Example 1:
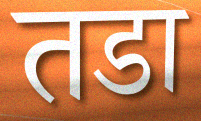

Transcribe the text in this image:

तडा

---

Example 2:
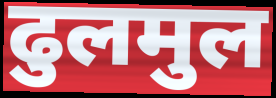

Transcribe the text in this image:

ढुलमुल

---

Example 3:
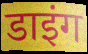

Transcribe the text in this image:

डाइंग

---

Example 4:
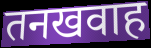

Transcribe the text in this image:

तनखवाह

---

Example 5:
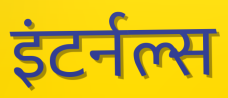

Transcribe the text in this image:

इंटर्नल्स